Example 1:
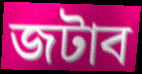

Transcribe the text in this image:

জটাব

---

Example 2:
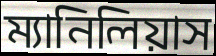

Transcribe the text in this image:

ম্যানিলিয়াস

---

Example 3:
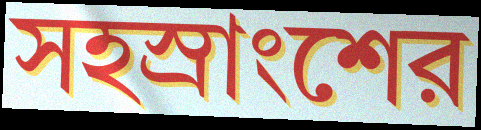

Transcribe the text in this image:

সহস্রাংশের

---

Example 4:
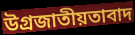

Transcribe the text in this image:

উগ্রজাতীয়তাবাদ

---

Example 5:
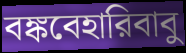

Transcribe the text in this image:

বঙ্কবেহারিবাবু